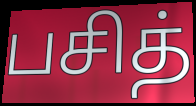
பசித்